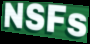
NSFs